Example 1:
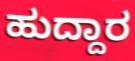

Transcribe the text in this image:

ಹುದ್ದಾರ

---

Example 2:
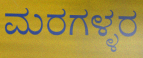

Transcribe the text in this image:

ಮರಗಳ್ಳರ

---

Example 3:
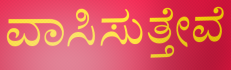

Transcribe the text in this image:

ವಾಸಿಸುತ್ತೇವೆ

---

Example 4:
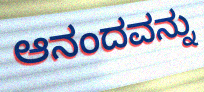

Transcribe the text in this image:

ಆನಂದವನ್ನು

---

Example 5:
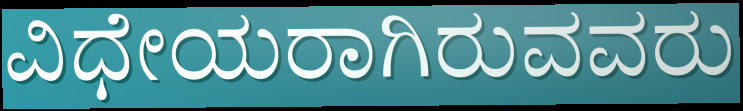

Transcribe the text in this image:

ವಿಧೇಯರಾಗಿರುವವರು